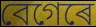
বেগেৰে